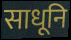
साधूनि